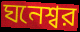
ঘনেশ্বর